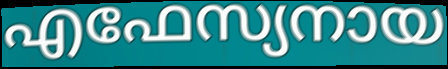
എഫേസ്യനായ